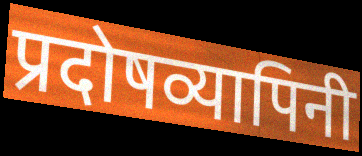
प्रदोषव्यापिनी